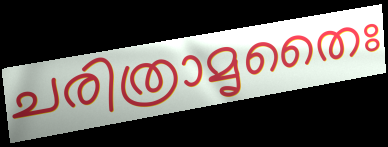
ചരിത്രാമൃതൈഃ